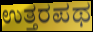
ಉತ್ತರಪಥ